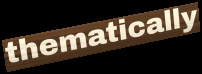
thematically